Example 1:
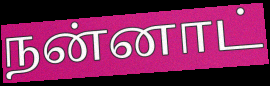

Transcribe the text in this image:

நன்னாட்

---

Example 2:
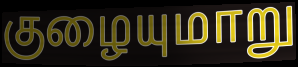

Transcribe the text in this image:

குழையுமாறு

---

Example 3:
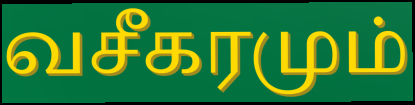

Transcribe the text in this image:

வசீகரமும்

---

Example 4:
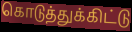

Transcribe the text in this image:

கொடுத்துக்கிட்டு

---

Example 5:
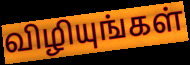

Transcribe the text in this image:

விழியுங்கள்